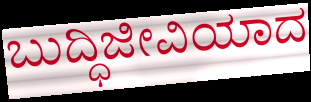
ಬುದ್ಧಿಜೀವಿಯಾದ